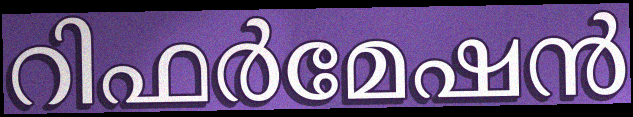
റിഫർമേഷൻ